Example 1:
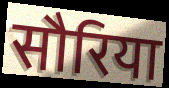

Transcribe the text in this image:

सौरिया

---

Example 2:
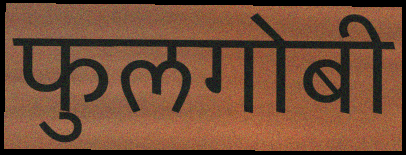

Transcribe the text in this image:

फुलगोबी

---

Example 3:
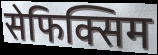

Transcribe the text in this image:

सेफिक्सिम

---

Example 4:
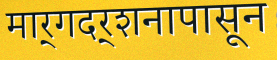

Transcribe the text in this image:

मार्गदर्शनापासून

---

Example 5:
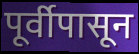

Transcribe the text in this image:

पूर्वीपासून